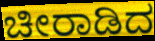
ಚೀರಾಡಿದ